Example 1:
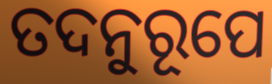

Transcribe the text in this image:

ତଦନୁରୂପେ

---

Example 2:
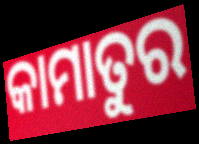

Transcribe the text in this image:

କାମାତୁର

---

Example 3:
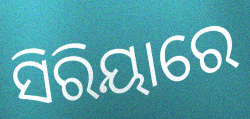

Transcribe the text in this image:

ସିରିୟାରେ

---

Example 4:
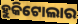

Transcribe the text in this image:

ହୁକିଟୋଲାର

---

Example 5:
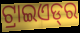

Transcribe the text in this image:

ଟ୍ରାଇଏଡ୍‌ର